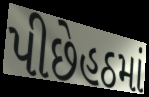
પીછેહઠમાં